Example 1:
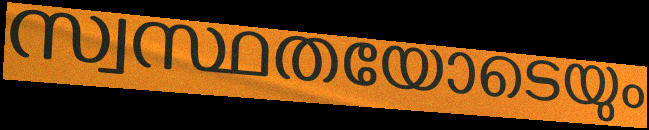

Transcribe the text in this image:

സ്വസ്ഥതയോടെയും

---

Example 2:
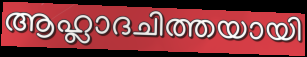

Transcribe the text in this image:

ആഹ്ലാദചിത്തയായി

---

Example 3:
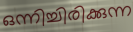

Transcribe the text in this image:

ഒന്നിച്ചിരിക്കുന്ന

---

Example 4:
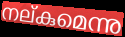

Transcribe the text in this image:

നല്‌കുമെന്നു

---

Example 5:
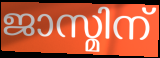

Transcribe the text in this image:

ജാസ്മിന്